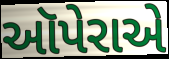
ઑપેરાએ